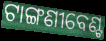
ଟାଙ୍ଗଣୀବେଣ୍ଟ